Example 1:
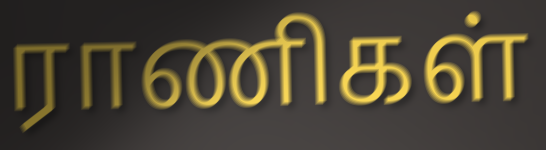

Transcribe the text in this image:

ராணிகள்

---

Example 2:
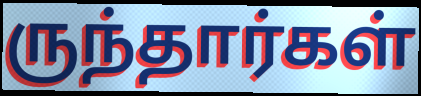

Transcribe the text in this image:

ருந்தார்கள்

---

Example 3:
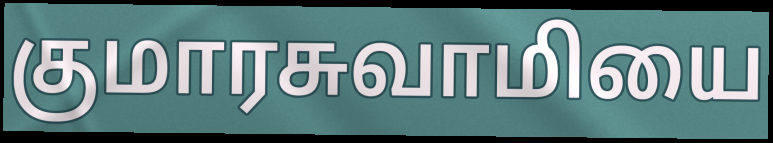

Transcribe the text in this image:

குமாரசுவாமியை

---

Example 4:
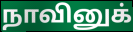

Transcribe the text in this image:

நாவினுக்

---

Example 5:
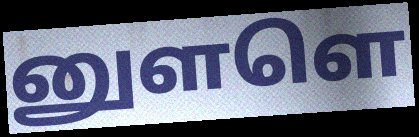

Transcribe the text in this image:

னுளளெ